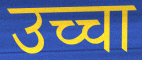
उच्चा